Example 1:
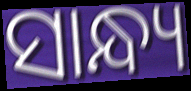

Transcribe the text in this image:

ସାନ୍ଧ୍ୟ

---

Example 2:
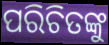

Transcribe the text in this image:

ପରିଚିତଙ୍କୁ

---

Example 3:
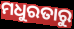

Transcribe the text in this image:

ମଧୁରତାରୁ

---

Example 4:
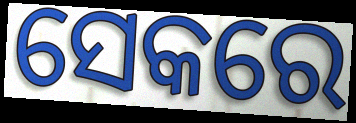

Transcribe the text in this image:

ସେକରେ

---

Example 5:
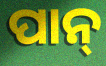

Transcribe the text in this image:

ପାନ୍